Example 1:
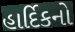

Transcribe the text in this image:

હાર્દિકનો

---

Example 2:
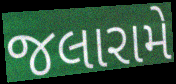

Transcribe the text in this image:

જલારામે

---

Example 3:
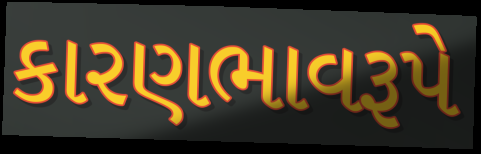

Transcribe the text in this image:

કારણભાવરૂપે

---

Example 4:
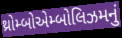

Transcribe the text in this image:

થ્રોમ્બોએમ્બોલિઝમનું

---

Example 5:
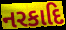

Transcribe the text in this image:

નરકાદિ